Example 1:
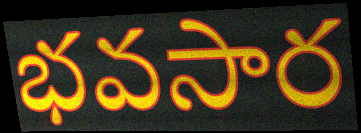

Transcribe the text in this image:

భవసార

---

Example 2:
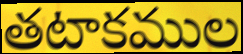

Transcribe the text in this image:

తటాకముల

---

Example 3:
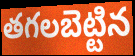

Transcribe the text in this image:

తగలబెట్టిన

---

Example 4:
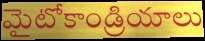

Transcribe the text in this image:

మైటోకాండ్రియాలు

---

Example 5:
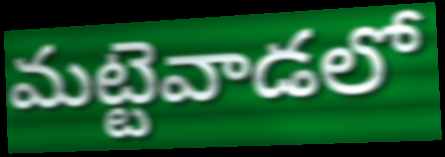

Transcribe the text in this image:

మట్టెవాడలో